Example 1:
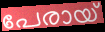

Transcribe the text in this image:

പേരായ്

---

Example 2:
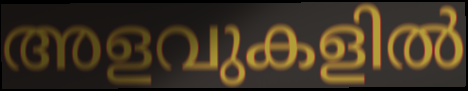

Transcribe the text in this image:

അളവുകളിൽ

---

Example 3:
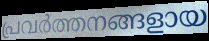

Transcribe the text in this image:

പ്രവർത്തനങ്ങളായ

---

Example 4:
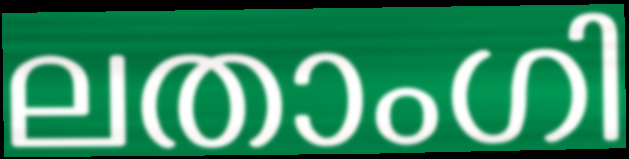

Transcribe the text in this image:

ലതാംഗി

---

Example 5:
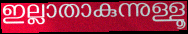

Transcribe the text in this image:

ഇല്ലാതാകുന്നുള്ളൂ